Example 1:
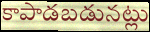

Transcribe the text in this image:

కాపాడబడునట్లు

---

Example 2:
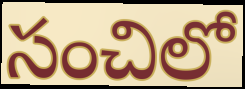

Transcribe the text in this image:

సంచిలో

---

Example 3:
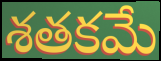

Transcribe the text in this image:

శతకమే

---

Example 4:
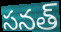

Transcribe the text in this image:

సనత్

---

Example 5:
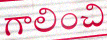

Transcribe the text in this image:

గాలించి